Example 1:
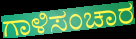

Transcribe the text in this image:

ಗಾಳಿಸಂಚಾರ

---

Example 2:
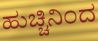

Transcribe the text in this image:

ಹುಚ್ಚಿನಿಂದ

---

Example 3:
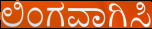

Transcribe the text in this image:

ಲಿಂಗವಾಗಿಸಿ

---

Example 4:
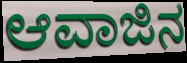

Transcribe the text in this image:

ಆವಾಜಿನ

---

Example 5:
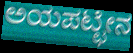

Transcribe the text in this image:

ಅಯಪಟ್ಟೇನ